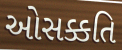
ઓસક્કતિ